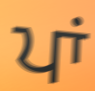
ਪਾਂ